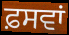
ਫ਼ਸਵਾਂ